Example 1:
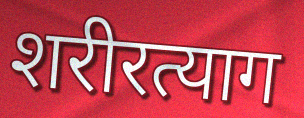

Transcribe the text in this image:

शरीरत्याग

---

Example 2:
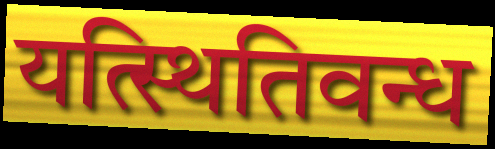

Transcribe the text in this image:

यत्स्थितिवन्ध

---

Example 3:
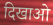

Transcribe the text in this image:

दिखाओ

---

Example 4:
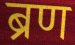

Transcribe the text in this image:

ब्रण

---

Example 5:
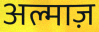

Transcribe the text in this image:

अल्माज़